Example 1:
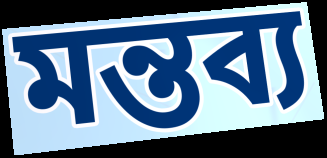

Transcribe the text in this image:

মন্তব্য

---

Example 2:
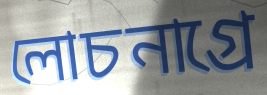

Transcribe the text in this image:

লোচনাগ্রে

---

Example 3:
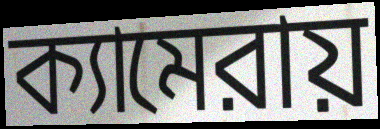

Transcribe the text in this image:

ক্যামেরায়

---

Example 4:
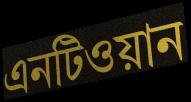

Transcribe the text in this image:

এনটিওয়ান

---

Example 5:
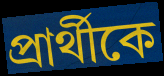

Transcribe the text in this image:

প্রার্থীকে